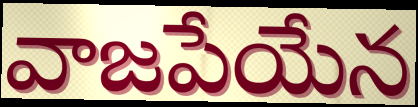
వాజపేయేన